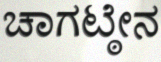
ಚಾಗಟ್ಠೇನ